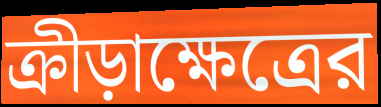
ক্রীড়াক্ষেত্রের